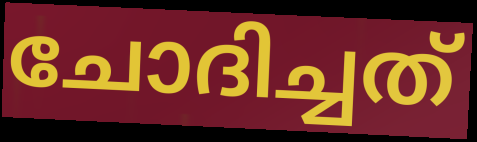
ചോദിച്ചത്